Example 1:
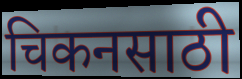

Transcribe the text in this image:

चिकनसाठी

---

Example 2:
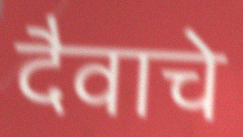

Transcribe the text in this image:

दैवाचे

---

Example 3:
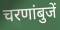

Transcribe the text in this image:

चरणांबुजें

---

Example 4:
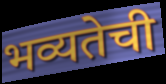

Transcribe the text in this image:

भव्यतेची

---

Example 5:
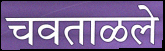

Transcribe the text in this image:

चवताळले